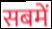
सबमें